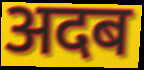
अदब